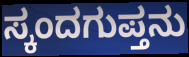
ಸ್ಕಂದಗುಪ್ತನು